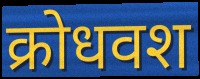
क्रोधवश